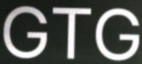
GTG